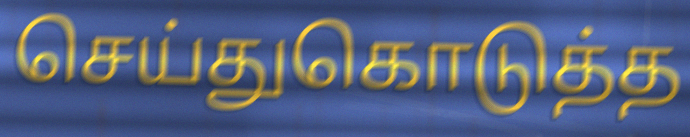
செய்துகொடுத்த